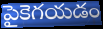
పైకెగయడం